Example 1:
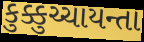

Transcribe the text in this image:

કુક્કુચ્ચાયન્તા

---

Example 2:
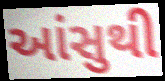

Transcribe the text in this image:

આંસુથી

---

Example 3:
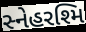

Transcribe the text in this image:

સ્નેહરશ્મિ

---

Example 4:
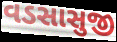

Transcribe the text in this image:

વડસાસુજી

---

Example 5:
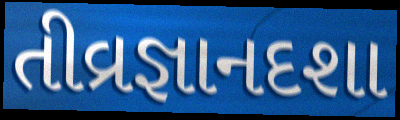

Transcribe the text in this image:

તીવ્રજ્ઞાનદશા